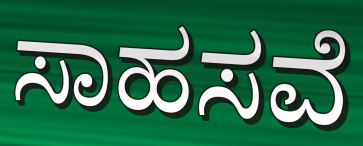
ಸಾಹಸವೆ